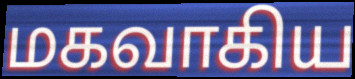
மகவாகிய